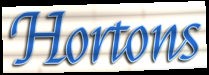
Hortons